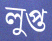
লুপ্ত